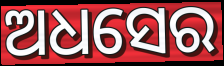
ଅଧସେର